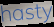
hasty